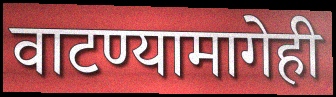
वाटण्यामागेही